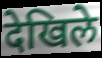
देखिले